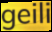
geili